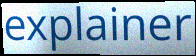
explainer